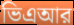
ভিএআর